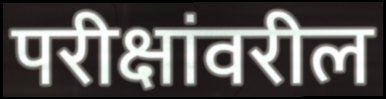
परीक्षांवरील